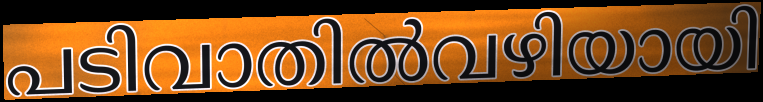
പടിവാതിൽവഴിയായി